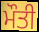
ਮੌਤੀ